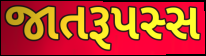
જાતરૂપસ્સ